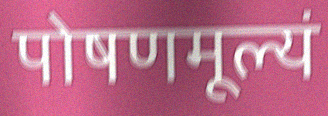
पोषणमूल्यं